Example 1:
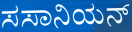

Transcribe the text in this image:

ಸಸಾನಿಯನ್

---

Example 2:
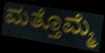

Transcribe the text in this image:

ಮತ್ತೊಮ್ಮೆ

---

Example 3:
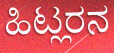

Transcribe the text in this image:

ಹಿಟ್ಲರನ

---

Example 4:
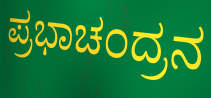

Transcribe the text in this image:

ಪ್ರಭಾಚಂದ್ರನ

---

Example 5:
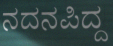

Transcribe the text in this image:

ನದನಪಿದ್ದ